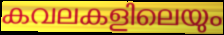
കവലകളിലെയും